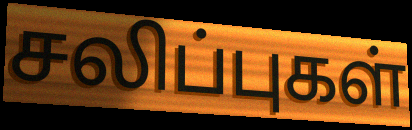
சலிப்புகள்